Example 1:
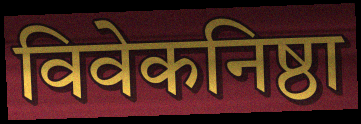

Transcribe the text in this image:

विवेकनिष्ठा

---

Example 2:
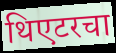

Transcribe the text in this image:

थिएटरचा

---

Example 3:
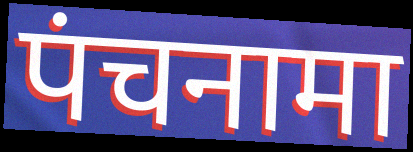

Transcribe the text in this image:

पंचनामा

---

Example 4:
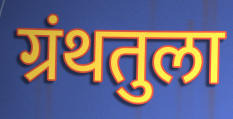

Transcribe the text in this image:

ग्रंथतुला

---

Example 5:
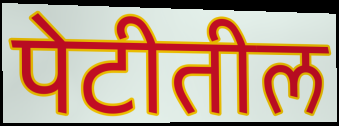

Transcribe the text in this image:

पेटीतील